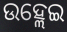
ଉହ୍ଲେଇ